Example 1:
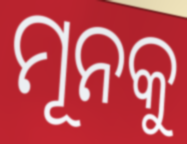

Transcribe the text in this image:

ମୂନକୁ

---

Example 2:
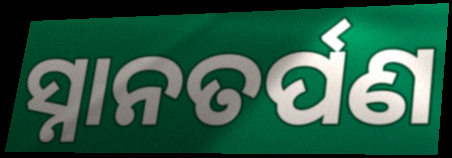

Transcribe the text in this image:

ସ୍ନାନତର୍ପଣ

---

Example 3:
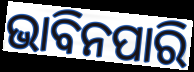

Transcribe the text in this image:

ଭାବିନପାରି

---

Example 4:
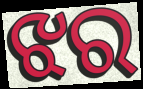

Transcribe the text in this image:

ଝର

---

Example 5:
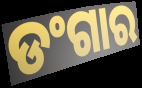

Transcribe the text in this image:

ଡଂଗାର